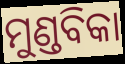
ମୁଣ୍ଡବିକା